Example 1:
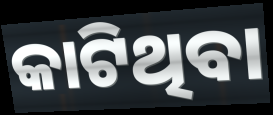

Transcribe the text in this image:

କାଟିଥିବା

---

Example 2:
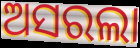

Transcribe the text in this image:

ଅସରଲା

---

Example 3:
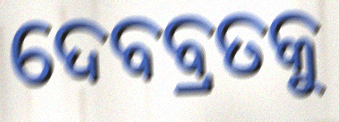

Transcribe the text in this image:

ଦେବବ୍ରତକୁ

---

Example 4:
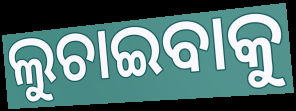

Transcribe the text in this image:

ଲୁଚାଇବାକୁ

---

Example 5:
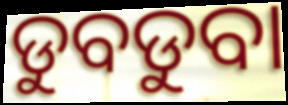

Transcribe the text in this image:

ଡୁବଡୁବା